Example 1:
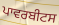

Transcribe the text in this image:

ਪਾਵਰਬੀਟਸ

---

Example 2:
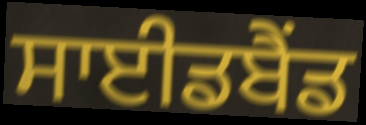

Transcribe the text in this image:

ਸਾਈਡਬੈਂਡ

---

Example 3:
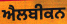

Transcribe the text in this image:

ਐਲਬੀਕਨ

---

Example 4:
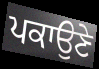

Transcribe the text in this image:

ਪਕਾਉਣੇ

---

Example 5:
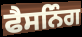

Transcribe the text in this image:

ਫੈਸਨਿੰਗ